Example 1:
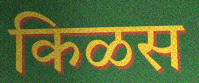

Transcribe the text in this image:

किळस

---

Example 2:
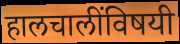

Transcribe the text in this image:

हालचालींविषयी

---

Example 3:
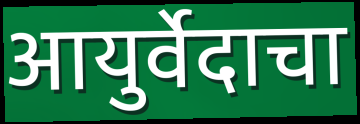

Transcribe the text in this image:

आयुर्वेदाचा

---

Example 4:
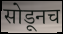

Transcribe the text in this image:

सोडूनच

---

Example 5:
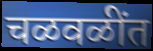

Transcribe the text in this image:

चळवळींत